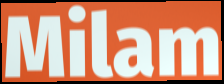
Milam